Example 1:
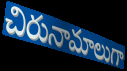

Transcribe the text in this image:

చిరునామాలుగా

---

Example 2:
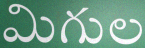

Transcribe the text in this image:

మిగుల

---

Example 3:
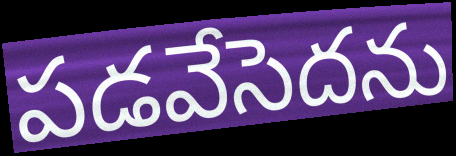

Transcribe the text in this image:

పడవేసెదను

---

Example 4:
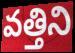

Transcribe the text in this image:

వత్తిని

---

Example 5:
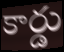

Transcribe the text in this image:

కార్డు